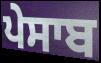
ਪੇਸਾਬ